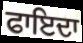
ਫਾਇਦਾ